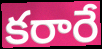
కరారే